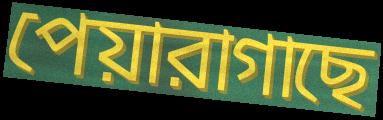
পেয়ারাগাছে